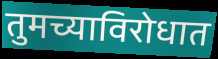
तुमच्याविरोधात